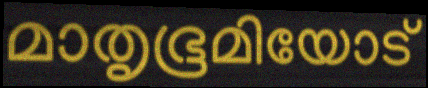
മാതൃഭൂമിയോട്